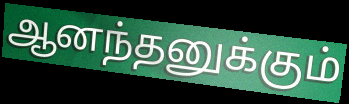
ஆனந்தனுக்கும்